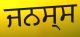
ਜਨਸ੍ਸ